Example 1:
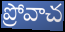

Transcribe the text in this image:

ప్రోవాచ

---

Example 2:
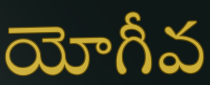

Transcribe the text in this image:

యోగీవ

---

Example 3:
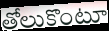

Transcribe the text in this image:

తోలుకొంటూ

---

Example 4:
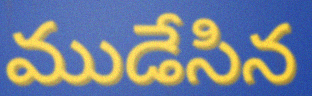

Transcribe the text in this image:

ముడేసిన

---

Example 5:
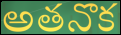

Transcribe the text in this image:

అతనొక